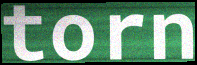
torn